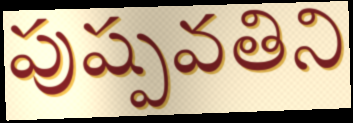
పుష్పవతిని